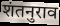
शंतनुराव